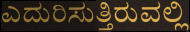
ಎದುರಿಸುತ್ತಿರುವಲ್ಲಿ